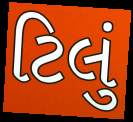
ટિલું